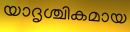
യാദൃശ്ചികമായ